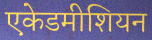
एकेडमीशियन